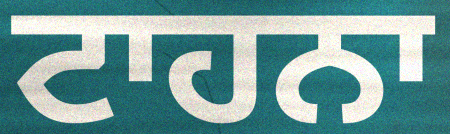
ਟਾਹਨਾ